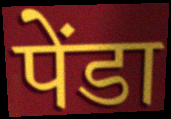
पेंडा